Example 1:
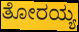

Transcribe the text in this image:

ತೋರಯ್ಯ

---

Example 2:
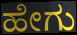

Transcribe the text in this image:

ಹೇಗು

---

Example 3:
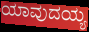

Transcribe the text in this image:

ಯಾವುದಯ್ಯ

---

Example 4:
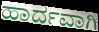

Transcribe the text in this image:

ಹಾರ್ದವಾಗಿ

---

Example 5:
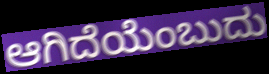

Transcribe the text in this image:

ಆಗಿದೆಯೆಂಬುದು